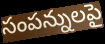
సంపన్నులపై